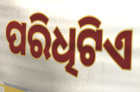
ପରିଧିଟିଏ